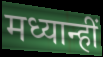
मध्यान्हीं